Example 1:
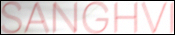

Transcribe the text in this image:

SANGHVI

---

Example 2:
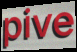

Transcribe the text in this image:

pive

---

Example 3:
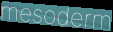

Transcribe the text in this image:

mesoderm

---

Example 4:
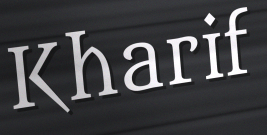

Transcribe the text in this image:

Kharif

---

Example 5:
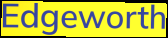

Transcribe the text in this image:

Edgeworth